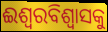
ଈଶ୍ୱରବିଶ୍ୱାସକୁ